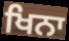
ਖਿਨਾ